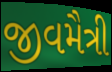
જીવમૈત્રી